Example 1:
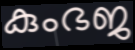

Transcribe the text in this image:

കുംഭജ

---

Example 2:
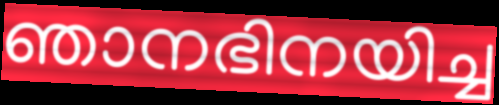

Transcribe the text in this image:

ഞാനഭിനയിച്ച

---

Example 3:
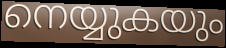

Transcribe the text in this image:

നെയ്യുകയും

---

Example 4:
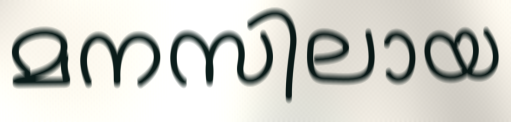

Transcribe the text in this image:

മനസിലായ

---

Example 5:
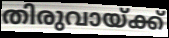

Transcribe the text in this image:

തിരുവായ്ക്ക്